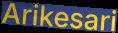
Arikesari